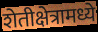
शेतीक्षेत्रामध्ये